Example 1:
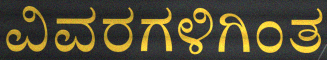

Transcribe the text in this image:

ವಿವರಗಳಿಗಿಂತ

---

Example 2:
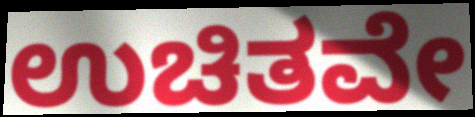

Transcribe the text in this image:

ಉಚಿತವೇ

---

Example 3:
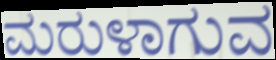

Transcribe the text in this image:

ಮರುಳಾಗುವ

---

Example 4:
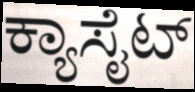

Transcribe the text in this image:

ಕ್ಯಾಸೈಟ್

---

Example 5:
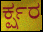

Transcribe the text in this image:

ರ್ಕ್ಷರ